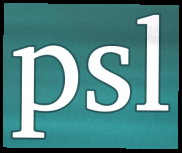
psl